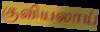
குவியலாய்